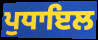
ਪੁਧਾਇਲ